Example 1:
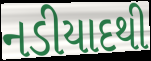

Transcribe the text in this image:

નડીયાદથી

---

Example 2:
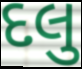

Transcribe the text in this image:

દલુ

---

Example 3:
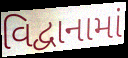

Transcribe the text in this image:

વિદ્વાનામાં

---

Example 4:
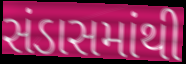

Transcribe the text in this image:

સંડાસમાંથી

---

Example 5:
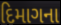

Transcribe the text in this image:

દિમાગના